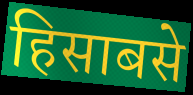
हिसाबसे